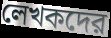
লেখকদের